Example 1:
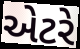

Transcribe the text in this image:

એટરે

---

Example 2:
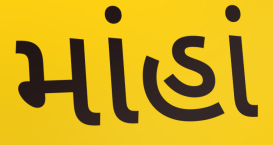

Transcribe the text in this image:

માંહાં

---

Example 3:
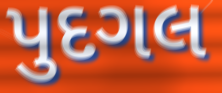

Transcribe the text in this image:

પુદગલ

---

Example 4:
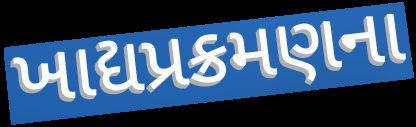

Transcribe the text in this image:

ખાદ્યપ્રક્રમણના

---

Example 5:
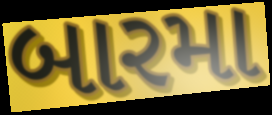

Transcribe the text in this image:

બારમા